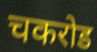
चकरोड